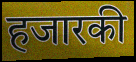
हजारकी